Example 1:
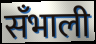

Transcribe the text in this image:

सँभाली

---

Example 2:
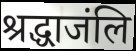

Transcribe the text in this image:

श्रद्धाजंलि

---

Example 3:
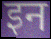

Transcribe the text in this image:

इन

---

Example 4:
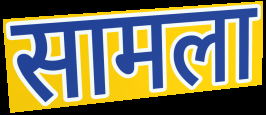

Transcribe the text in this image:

सामला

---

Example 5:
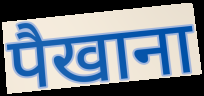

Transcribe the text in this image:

पैखाना